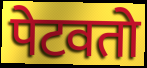
पेटवतो